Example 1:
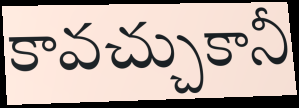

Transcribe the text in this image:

కావచ్చుకానీ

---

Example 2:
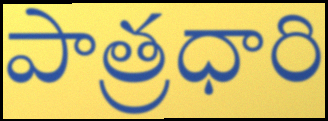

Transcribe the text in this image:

పాత్రధారి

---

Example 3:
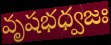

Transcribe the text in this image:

వృషభధ్వజః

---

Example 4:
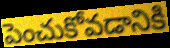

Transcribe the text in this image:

పెంచుకోవడానికి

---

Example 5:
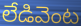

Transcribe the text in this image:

లేడివెంట